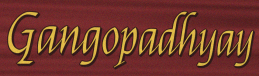
Gangopadhyay